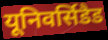
यूनिवर्सिडैड